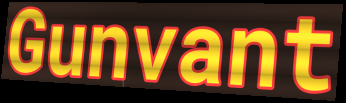
Gunvant